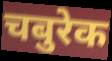
चबुरेक